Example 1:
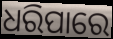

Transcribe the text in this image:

ଧରିପାରେ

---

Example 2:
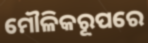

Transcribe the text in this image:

ମୌଳିକରୂପରେ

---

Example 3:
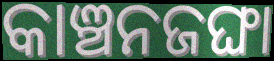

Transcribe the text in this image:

କାଞ୍ଚନଜଙ୍ଘା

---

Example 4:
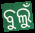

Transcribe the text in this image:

ବୁଲୁଁ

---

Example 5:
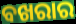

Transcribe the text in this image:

ବଖରାର